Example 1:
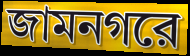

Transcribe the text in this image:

জামনগরে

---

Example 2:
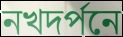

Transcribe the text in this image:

নখদর্পনে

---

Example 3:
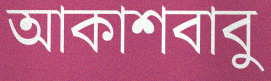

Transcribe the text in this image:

আকাশবাবু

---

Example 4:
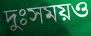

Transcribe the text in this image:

দুঃসময়ও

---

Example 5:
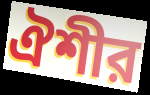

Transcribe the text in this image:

ঐশীর